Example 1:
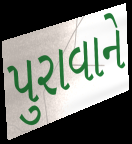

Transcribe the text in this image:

પુરાવાને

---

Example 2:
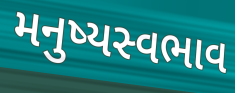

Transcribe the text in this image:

મનુષ્યસ્વભાવ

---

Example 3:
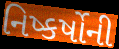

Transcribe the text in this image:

નિષ્કર્ષોની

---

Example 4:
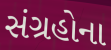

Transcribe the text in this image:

સંગ્રહોના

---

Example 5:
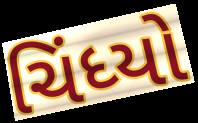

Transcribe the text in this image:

ચિંધ્યો